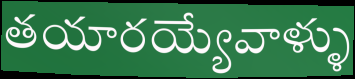
తయారయ్యేవాళ్ళు